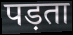
पड़ता